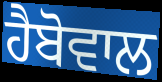
ਹੈਬੋਵਾਲ